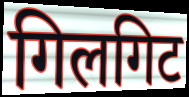
गिलगिट